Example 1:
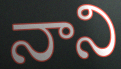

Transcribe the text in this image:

నాని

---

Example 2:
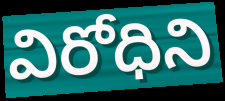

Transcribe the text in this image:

విరోధిని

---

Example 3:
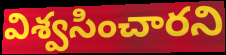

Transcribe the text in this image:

విశ్వసించారని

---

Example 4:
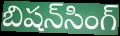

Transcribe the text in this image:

బిషన్‌సింగ్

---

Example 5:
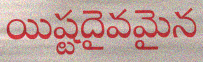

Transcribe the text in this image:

యిష్టదైవమైన